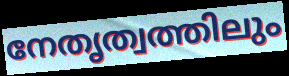
നേതൃത്വത്തിലും